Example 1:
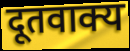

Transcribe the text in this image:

दूतवाक्य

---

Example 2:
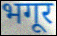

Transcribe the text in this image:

भगूर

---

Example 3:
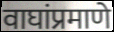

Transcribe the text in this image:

वाघांप्रमाणे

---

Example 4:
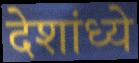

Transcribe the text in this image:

देशांध्ये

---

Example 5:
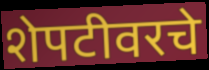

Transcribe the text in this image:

शेपटीवरचे